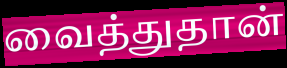
வைத்துதான்